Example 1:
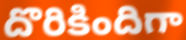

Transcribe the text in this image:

దొరికిందిగా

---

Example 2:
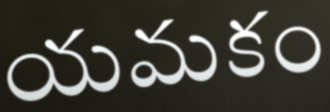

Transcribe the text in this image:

యమకం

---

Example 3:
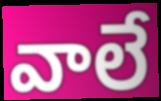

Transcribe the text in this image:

వాలే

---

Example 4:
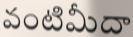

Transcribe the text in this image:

వంటిమీదా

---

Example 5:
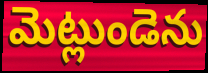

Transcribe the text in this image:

మెట్లుండెను